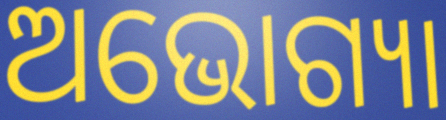
ଅଭୋଗ୍ୟା